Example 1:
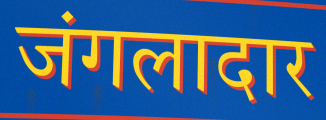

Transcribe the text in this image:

जंगलादार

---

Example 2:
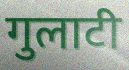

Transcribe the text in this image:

गुलाटी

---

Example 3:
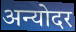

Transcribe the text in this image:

अन्योदर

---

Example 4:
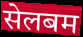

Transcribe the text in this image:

सेलबम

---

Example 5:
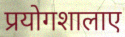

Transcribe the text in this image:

प्रयोगशालाए